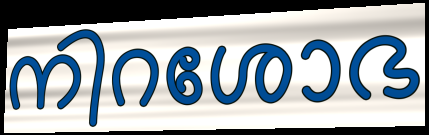
നിറശോഭ